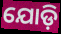
ଯୋଡ଼ି